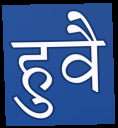
हुवै